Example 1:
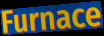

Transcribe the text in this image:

Furnace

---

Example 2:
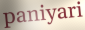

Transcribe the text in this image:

paniyari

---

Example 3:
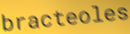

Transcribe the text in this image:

bracteoles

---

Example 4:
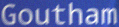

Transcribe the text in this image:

Goutham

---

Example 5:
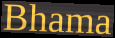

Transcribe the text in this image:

Bhama